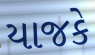
યાજકે